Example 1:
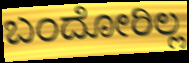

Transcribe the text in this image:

ಬಂದೋರಿಲ್ಲ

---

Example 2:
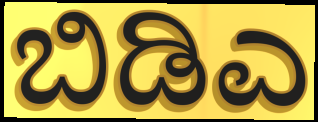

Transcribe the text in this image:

ಬಿಡಿಎ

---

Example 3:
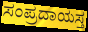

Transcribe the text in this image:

ಸಂಪ್ರದಾಯಸ್ತ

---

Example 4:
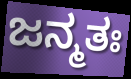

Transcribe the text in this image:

ಜನ್ಮತಃ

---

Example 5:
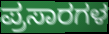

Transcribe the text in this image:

ಪ್ರಸಾರಗಳ